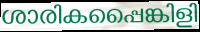
ശാരികപ്പൈങ്കിളി